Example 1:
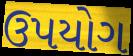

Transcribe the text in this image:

ઉપયોગ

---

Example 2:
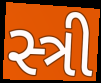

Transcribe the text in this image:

સ્ત્રી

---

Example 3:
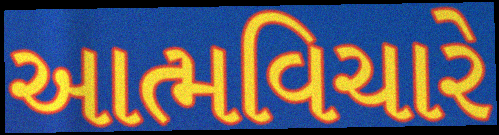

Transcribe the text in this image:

આત્મવિચારે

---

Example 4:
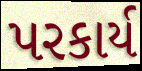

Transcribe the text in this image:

પરકાર્ય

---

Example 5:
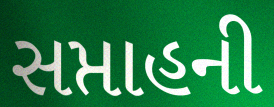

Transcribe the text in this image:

સપ્તાહની